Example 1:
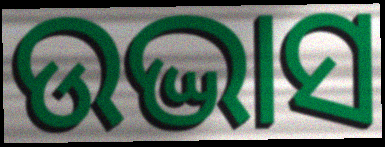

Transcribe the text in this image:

ଉଦ୍ଭାସ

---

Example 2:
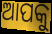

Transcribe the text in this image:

ଆପକୁ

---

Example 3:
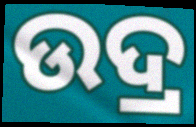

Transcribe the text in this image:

ଉଦ୍ର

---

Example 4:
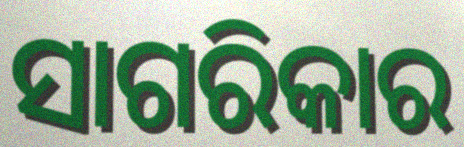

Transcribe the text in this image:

ସାଗରିକାର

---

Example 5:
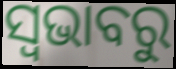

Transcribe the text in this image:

ସ୍ୱଭାବରୁ